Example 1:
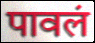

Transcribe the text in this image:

पावलं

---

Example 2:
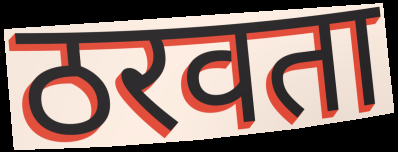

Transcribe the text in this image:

ठरवता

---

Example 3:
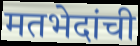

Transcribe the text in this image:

मतभेदांची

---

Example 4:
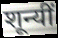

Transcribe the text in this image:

शून्यीं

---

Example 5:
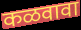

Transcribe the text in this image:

कळवावा